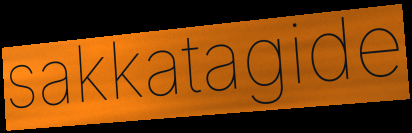
sakkatagide